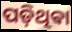
ପଡ଼ିଥିଵା